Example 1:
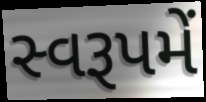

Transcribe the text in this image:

સ્વરૂપમેં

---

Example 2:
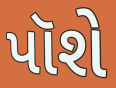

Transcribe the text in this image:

પૉશે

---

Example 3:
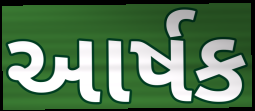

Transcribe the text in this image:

આર્ષક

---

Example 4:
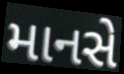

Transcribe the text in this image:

માનસે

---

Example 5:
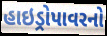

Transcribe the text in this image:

હાઇડ્રોપાવરનો